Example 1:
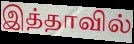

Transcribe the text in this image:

இத்தாவில்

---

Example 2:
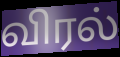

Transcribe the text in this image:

விரல்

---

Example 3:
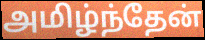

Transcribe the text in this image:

அமிழ்ந்தேன்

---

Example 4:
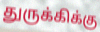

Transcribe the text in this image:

துருக்கிக்கு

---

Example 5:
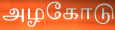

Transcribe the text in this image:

அழகோடு